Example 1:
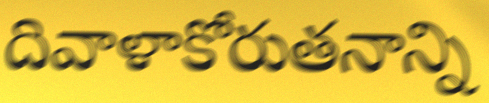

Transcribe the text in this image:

దివాళాకోరుతనాన్ని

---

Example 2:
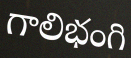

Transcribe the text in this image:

గాలిభంగి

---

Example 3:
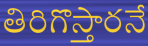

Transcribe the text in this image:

తిరిగొస్తారనే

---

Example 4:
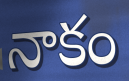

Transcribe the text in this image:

నాకం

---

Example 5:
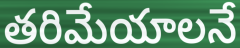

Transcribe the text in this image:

తరిమేయాలనే